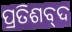
ପ୍ରତିଶବ୍‌ଦ